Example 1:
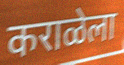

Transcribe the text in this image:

कराळेला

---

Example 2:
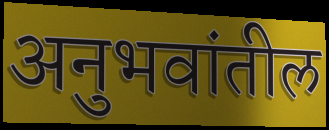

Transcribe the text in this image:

अनुभवांतील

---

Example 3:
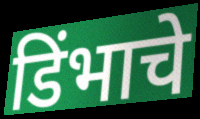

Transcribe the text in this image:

डिंभाचे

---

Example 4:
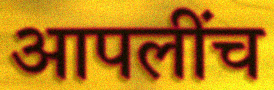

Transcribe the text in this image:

आपलींच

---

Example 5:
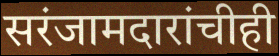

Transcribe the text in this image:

सरंजामदारांचीही